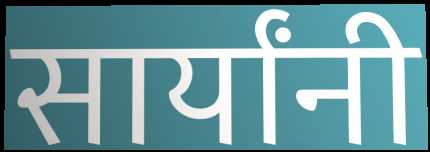
सार्यांनी